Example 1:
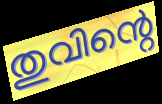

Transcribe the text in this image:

തുവിന്റെ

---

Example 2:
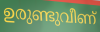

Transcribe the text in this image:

ഉരുണ്ടുവീണ്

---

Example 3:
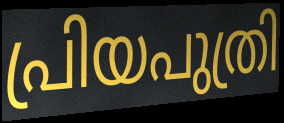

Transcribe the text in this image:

പ്രിയപുത്രി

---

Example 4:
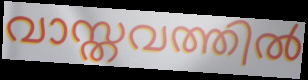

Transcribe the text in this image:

വാസ്തവത്തിൽ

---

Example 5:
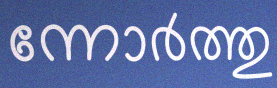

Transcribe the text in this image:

ന്നോർത്തു